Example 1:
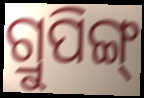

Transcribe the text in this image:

ଗ୍ରୁପିଙ୍ଗ୍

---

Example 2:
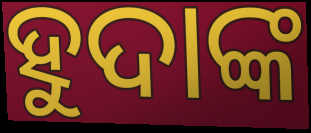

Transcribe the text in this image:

ହୁଦାଙ୍କ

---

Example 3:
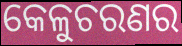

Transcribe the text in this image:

କେଳୁଚରଣର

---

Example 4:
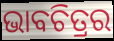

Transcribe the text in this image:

ଭାବଚିତ୍ରର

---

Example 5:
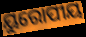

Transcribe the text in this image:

ୟୁରୋପୀୟ